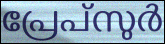
പ്രേപ്സുർ